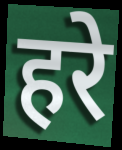
हरे